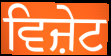
ਵਿਜ਼ੇਟ